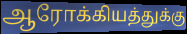
ஆரோக்கியத்துக்கு